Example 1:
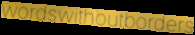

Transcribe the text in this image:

wordswithoutborders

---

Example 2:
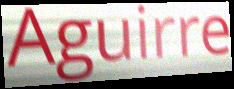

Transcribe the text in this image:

Aguirre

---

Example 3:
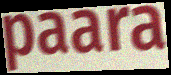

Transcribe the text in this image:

paara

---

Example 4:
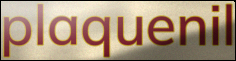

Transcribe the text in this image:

plaquenil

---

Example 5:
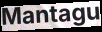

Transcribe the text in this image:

Mantagu